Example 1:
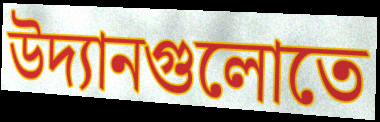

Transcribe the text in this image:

উদ্যানগুলোতে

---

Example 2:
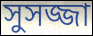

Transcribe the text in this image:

সুসজ্জা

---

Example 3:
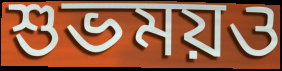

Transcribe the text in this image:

শুভময়ও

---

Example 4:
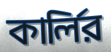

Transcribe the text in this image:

কার্লির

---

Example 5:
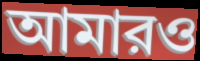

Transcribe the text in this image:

আমারও